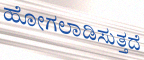
ಹೋಗಲಾಡಿಸುತ್ತದೆ